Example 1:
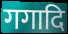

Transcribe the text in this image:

गगादि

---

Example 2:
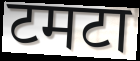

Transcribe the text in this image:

टमटा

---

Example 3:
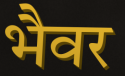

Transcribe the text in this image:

भैवर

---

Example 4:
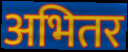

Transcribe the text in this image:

अभितर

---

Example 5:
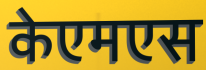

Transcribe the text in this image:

केएमएस